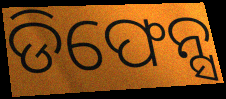
ଡିଫେନ୍ସ